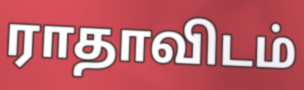
ராதாவிடம்